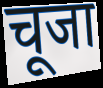
चूजा